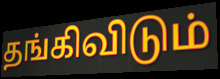
தங்கிவிடும்